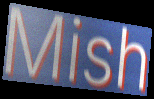
Mish